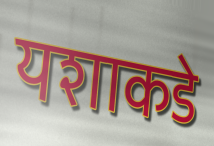
यशाकडे